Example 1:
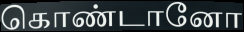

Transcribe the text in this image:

கொண்டானோ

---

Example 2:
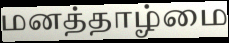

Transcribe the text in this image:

மனத்தாழ்மை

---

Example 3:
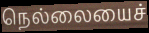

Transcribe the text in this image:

நெல்லையைச்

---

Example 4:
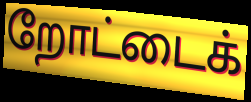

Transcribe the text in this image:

றோட்டைக்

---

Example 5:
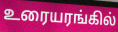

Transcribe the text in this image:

உரையரங்கில்